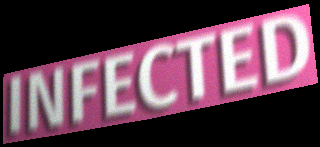
INFECTED